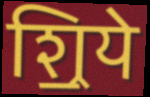
श्रि॒ये